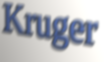
Kruger